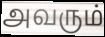
அவரும்